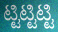
ಟ್ಟಿಟ್ಟಿಟ್ಟಿ